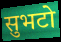
सुभटो